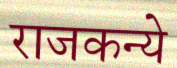
राजकन्ये